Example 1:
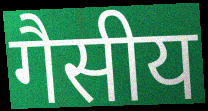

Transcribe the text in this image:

गैसीय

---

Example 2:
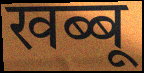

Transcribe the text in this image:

खब्बू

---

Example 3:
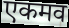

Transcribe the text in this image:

एकमव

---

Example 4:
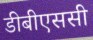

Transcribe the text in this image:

डीबीएससी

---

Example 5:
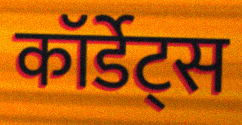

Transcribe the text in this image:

कॉर्डेट्स